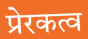
प्रेरकत्व